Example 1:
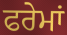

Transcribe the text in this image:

ਫਰੇਮਾਂ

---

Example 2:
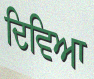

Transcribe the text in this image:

ਦਿਵਿਆ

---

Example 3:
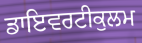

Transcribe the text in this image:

ਡਾਇਵਰਟੀਕੁਲਮ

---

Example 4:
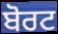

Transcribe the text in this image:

ਬੋਰਟ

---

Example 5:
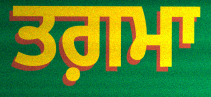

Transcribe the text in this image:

ਤਗ਼ਮਾ